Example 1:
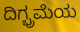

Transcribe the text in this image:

ದಿಗ್ಭ್ರಮೆಯ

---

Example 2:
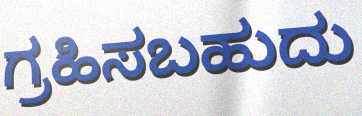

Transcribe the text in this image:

ಗ್ರಹಿಸಬಹುದು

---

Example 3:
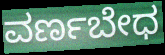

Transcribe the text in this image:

ವರ್ಣಬೇಧ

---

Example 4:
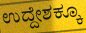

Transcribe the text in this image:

ಉದ್ದೇಶಕ್ಕೂ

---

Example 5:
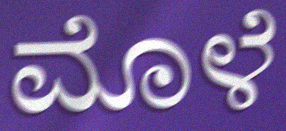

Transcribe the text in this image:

ಮೊಳೆ